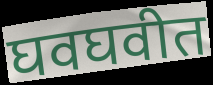
घवघवीत